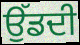
ਉੱਡਦੀ